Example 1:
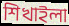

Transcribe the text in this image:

শিখাইলা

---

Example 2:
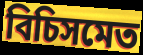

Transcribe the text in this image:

বিচিসমেত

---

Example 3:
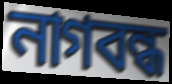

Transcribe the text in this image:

নাগবন্ধ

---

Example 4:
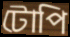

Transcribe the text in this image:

টোপি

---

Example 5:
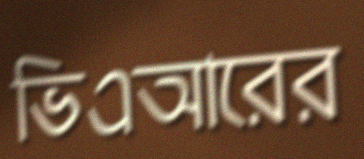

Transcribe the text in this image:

ভিএআরের